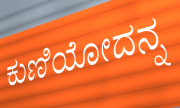
ಕುಣಿಯೋದನ್ನ